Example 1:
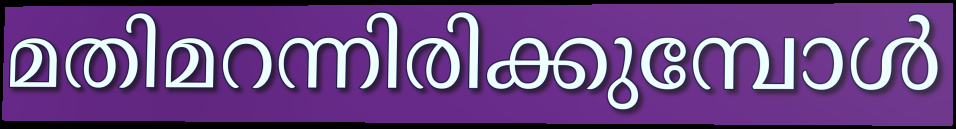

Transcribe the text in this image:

മതിമറന്നിരിക്കുമ്പോൾ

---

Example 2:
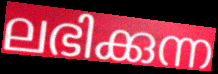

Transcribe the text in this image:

ലഭിക്കുന്ന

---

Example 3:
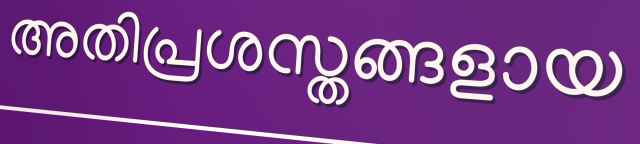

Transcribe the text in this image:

അതിപ്രശസ്തങ്ങളായ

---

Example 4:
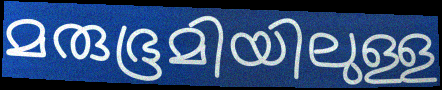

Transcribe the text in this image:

മരുഭൂമിയിലുള്ള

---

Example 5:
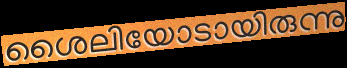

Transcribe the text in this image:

ശൈലിയോടായിരുന്നു